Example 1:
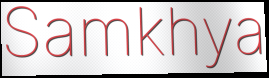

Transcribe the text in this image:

Samkhya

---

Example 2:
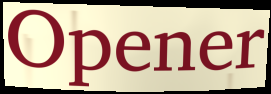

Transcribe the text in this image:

Opener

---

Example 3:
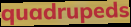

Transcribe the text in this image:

quadrupeds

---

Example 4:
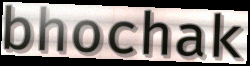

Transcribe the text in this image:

bhochak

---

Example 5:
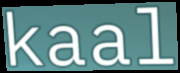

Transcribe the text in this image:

kaal